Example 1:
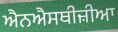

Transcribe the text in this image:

ਐਨਐਸਥੀਜ਼ੀਆ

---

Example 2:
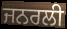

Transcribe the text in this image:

ਜਨਰਲੀ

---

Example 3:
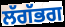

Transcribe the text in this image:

ਲੱਗੱਭਗ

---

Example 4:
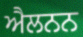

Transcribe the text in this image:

ਐਲਨਨ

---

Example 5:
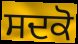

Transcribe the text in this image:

ਸਦਕੋ